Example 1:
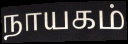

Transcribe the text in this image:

நாயகம்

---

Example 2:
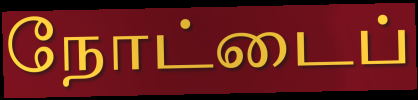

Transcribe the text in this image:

நோட்டைப்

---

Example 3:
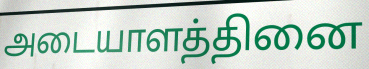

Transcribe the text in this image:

அடையாளத்தினை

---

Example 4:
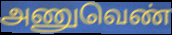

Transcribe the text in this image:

அணுவெண்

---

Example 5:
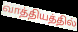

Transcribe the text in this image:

வாத்தியத்தில்